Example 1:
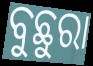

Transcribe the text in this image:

ବୁଛୁରା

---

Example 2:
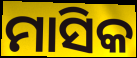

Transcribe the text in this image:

ମାସିକ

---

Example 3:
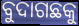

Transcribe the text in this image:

ବୁଦାଗଛକୁ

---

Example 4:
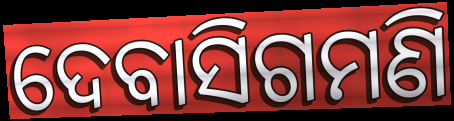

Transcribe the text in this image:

ଦେବାସିଗମଣି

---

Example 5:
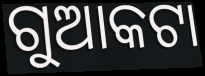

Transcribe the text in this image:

ଗୁଆକଟା